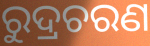
ରୁଦ୍ରଚରଣ